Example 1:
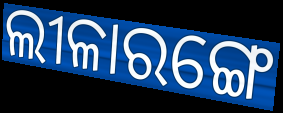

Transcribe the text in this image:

ଲୀଳାରଙ୍ଗେ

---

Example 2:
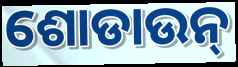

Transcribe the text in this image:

ଶୋଡାଉନ୍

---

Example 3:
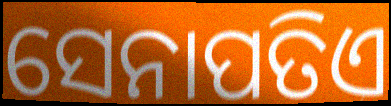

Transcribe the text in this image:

ସେନାପତିଏ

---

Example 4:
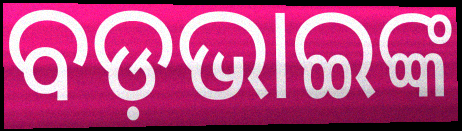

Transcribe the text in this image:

ବଡ଼ଭାଇଙ୍କ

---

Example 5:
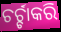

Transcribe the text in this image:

ଚର୍ଚ୍ଚାକରି